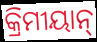
କ୍ରିମୀୟାନ୍